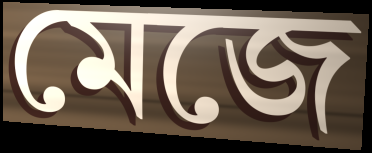
মেজে